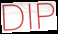
DIP